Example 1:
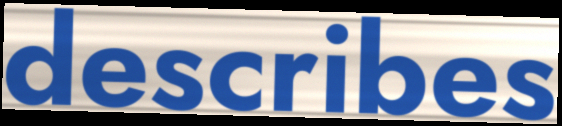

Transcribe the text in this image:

describes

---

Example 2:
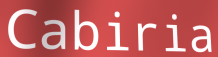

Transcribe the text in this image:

Cabiria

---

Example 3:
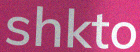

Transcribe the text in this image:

shkto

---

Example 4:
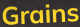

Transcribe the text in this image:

Grains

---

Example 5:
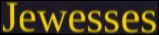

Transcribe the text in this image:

Jewesses